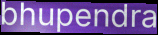
bhupendra